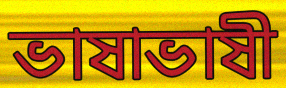
ভাষাভাষী